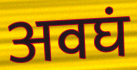
अवघं